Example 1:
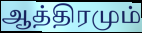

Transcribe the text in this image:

ஆத்திரமும்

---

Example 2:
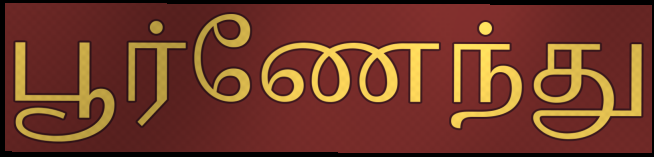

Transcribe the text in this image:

பூர்ணேந்து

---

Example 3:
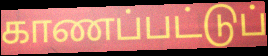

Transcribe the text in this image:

காணப்பட்டுப்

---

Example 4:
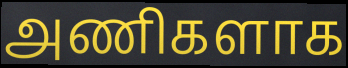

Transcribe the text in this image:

அணிகளாக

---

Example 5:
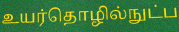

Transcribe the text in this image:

உயர்தொழில்நுட்ப